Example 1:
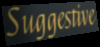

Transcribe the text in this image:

Suggestive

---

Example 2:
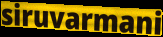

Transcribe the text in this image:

siruvarmani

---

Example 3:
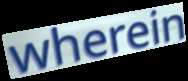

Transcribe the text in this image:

wherein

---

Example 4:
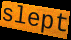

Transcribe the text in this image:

slept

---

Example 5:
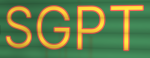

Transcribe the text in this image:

SGPT